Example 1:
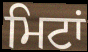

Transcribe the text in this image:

ਮਿਟਾਂ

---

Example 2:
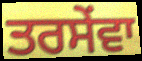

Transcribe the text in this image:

ਤਰਸੇਂਵਾ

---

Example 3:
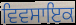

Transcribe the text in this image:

ਵਿਵਸਾਇਕ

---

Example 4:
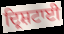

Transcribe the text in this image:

ਦ੍ਰਿਸ਼ਟਾਈ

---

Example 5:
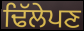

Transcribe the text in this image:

ਢਿੱਲੇਪਣ